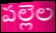
పల్లెల